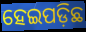
ହେଇପଡ଼ିଛ